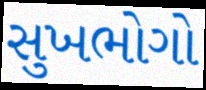
સુખભોગો